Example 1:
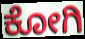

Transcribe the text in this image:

ಕೋಗಿ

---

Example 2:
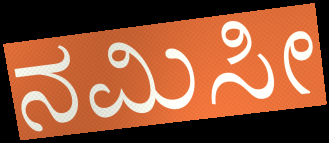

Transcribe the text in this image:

ನಮಿಸೀ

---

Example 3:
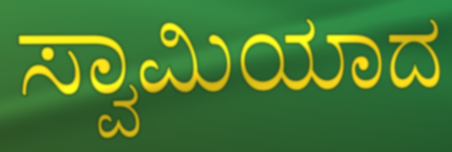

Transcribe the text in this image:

ಸ್ವಾಮಿಯಾದ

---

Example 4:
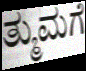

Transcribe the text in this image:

ತ್ಮುಮಗೆ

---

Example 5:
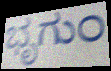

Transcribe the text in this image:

ಭೃಗುಂ